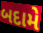
બદામે